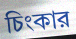
চিংকার